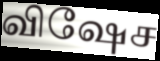
விஷேச